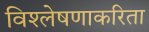
विश्लेषणाकरिता